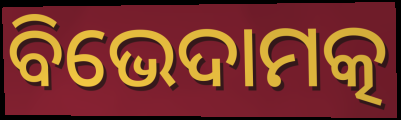
ବିଭେଦାମତ୍କ